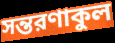
সন্তরণাকুল